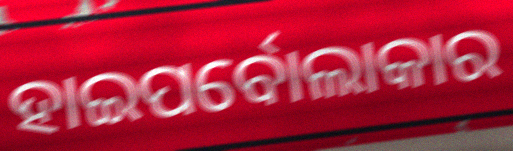
ହାଇପର୍ବୋଲାକାର